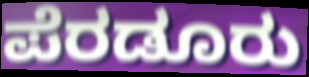
ಪೆರಡೂರು